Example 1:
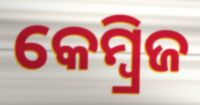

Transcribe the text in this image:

କେମ୍ବ୍ରିଜ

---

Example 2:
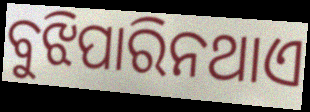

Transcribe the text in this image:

ବୁଝିପାରିନଥାଏ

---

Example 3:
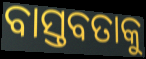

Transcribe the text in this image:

ବାସ୍ତବତାକୁ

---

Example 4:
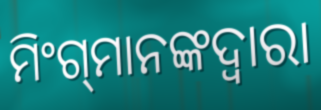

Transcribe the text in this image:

ମିଂଗ୍‍ମାନଙ୍କଦ୍ୱାରା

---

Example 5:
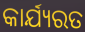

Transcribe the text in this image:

କାର୍ଯ୍ୟରତ